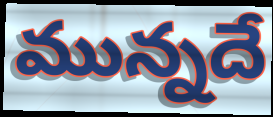
మున్నదే